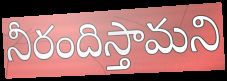
నీరందిస్తామని